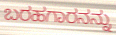
ಬರಹಗಾರನನ್ನು